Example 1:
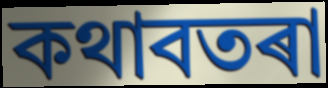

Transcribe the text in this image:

কথাবতৰা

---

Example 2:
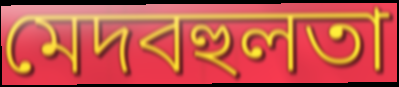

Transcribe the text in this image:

মেদবহুলতা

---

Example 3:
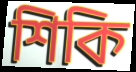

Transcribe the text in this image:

শিকি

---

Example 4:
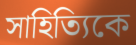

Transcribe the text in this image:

সাহিত্যিকে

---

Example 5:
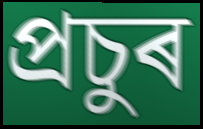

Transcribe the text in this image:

প্ৰচুৰ